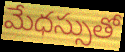
మేధస్సుతో